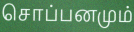
சொப்பனமும்